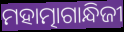
ମହାତ୍ମାଗାନ୍ଧିଜୀ